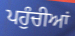
ਪਹੁੰਚੀਆਂ